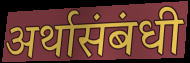
अर्थासंबंधी